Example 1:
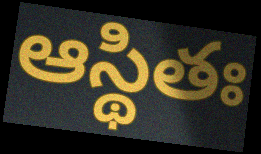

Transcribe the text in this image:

ఆస్థితః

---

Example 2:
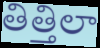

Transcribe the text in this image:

తిత్తిలా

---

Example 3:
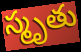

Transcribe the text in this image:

స్మృతు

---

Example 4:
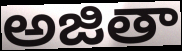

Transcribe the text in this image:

అజితా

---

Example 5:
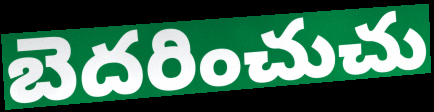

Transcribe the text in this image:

బెదరించుచు